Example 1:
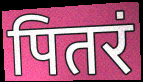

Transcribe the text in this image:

पितरं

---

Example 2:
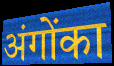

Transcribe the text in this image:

अंगोंका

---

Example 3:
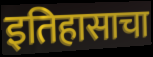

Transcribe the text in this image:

इतिहासाचा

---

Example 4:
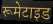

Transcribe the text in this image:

रूमेटाइड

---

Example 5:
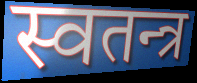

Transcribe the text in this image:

स्वतन्त्र